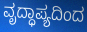
ವೃದ್ಧಾಪ್ಯದಿಂದ